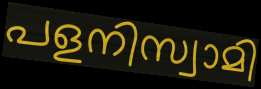
പളനിസ്വാമി